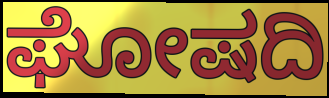
ಘೋಷದಿ